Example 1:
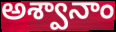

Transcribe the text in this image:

అశ్వానాం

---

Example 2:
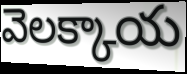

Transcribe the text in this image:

వెలక్కాయ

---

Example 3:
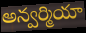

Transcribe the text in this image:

అన్వర్మియా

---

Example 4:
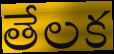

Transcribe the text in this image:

తేలక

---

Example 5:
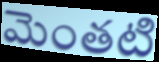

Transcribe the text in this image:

మెంతటి